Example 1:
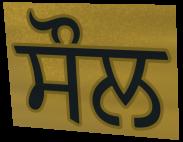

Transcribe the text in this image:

ਸੌਲ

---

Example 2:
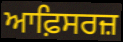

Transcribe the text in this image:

ਆਫ਼ਿਸਰਜ਼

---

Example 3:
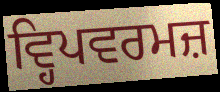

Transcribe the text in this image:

ਵ੍ਹਿਪਵਰਮਜ਼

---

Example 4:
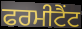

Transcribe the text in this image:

ਫਰਮੀਟੈਂਟ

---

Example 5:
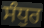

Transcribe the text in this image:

ਸੰਧੁਰ